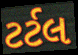
ટર્ટલ